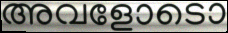
അവളോടൊ